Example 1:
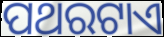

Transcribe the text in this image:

ପଥରଟାଏ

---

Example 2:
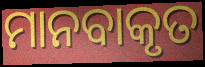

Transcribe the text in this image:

ମାନବାକୃତ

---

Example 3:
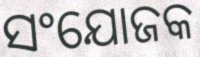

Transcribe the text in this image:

ସଂଯୋଜକ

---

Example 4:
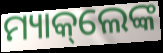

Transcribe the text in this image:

ମ୍ୟାକ୍‌ଲେଙ୍କ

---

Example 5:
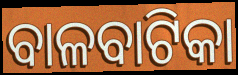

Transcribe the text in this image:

ବାଳବାଟିକା